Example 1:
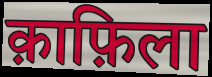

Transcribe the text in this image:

क़ाफ़िला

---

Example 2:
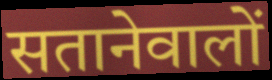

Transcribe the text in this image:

सतानेवालों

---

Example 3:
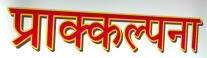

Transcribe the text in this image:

प्राक्कल्पना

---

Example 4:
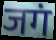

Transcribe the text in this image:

जगं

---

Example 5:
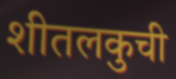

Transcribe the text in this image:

शीतलकुची